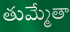
తుమ్మేతా